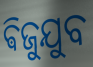
ଵିଜୁଯୁବ